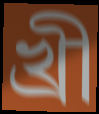
খ্ৰী